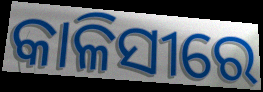
କାଳିସୀରେ